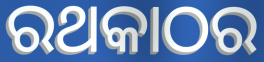
ରଥକାଠର